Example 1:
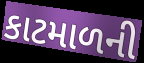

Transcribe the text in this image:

કાટમાળની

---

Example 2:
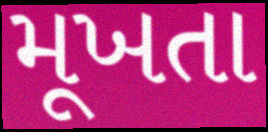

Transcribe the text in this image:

મૂખતા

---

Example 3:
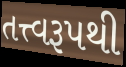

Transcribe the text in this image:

તત્ત્વરૂપથી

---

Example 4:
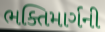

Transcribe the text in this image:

ભક્તિમાર્ગની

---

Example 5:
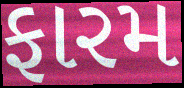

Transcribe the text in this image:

ફારમ